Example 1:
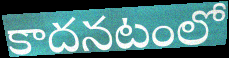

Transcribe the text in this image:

కాదనటంలో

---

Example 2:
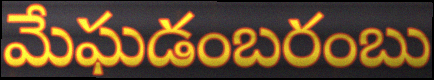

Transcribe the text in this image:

మేఘడంబరంబు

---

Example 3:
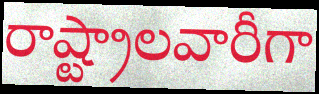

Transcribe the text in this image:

రాష్ట్రాలవారీగా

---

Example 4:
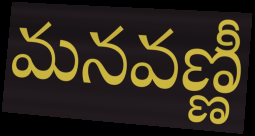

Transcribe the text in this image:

మనవణ్ణీ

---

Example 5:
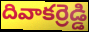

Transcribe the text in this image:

దివాకర్రెడ్డి